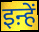
इऩ्हें